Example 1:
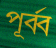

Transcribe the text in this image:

পূৰ্ব্ব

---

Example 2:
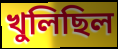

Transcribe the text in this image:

খুলিছিল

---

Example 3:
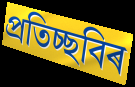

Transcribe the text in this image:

প্ৰতিচ্ছবিৰ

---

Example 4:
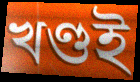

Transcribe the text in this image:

খণ্ডই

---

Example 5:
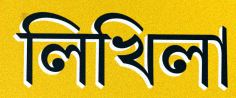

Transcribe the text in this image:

লিখিলা